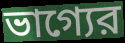
ভাগ্যের